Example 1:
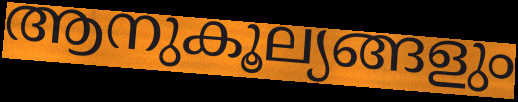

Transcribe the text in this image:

ആനുകൂല്യങ്ങളും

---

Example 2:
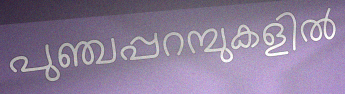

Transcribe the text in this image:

പുഞ്ചപ്പറമ്പുകളിൽ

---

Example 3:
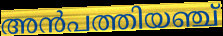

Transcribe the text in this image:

അൻപത്തിയഞ്ച്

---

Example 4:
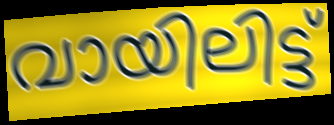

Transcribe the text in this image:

വായിലിട്ട്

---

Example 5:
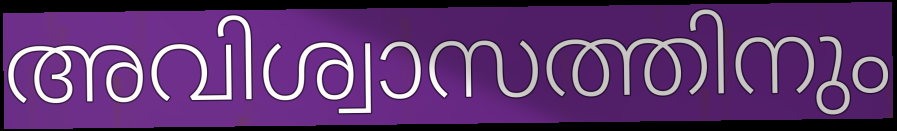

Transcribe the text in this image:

അവിശ്വാസത്തിനും